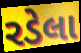
રડેલા